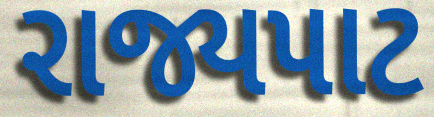
રાજ્યપાટ